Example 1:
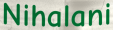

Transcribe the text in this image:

Nihalani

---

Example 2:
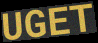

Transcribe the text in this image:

UGET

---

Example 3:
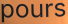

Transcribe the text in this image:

pours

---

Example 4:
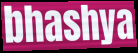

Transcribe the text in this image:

bhashya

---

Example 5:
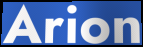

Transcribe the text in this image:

Arion